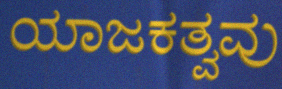
ಯಾಜಕತ್ವವು